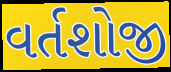
વર્તશોજી